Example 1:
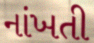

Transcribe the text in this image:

નાંખતી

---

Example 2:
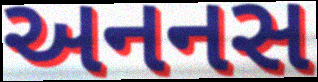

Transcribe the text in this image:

અનનસ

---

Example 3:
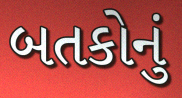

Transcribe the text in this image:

બતકોનું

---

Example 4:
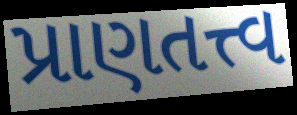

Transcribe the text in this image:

પ્રાણતત્ત્વ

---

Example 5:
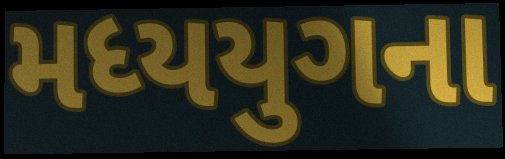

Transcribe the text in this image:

મધ્યયુગના